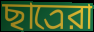
ছাত্রেরা